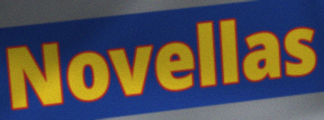
Novellas